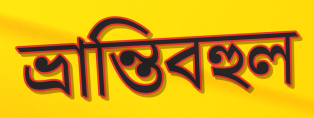
ভ্রান্তিবহুল